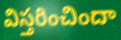
విస్తరించిందా